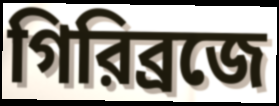
গিরিব্রজে